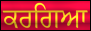
ਕਰਗਿਆ